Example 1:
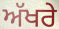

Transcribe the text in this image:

ਅੱਖਰੇ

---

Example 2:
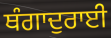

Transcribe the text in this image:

ਥੰਗਾਦੁਰਾਈ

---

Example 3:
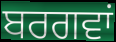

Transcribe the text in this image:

ਬਰਗਵਾਂ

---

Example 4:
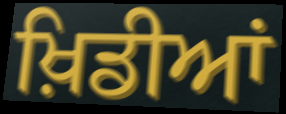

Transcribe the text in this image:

ਖ਼ਿਡੀਆਂ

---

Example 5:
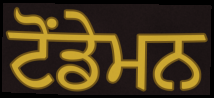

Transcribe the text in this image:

ਟੋਂਡੇਮਨ